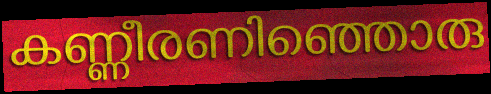
കണ്ണീരണിഞ്ഞൊരു